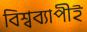
বিশ্বব্যাপীই